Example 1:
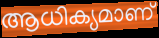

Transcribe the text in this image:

ആധിക്യമാണ്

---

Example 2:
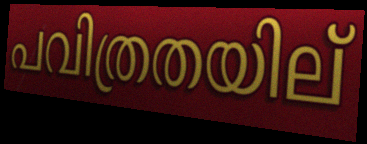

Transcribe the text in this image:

പവിത്രതയില്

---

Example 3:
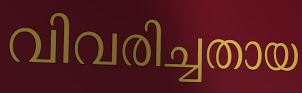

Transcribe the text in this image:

വിവരിച്ചതായ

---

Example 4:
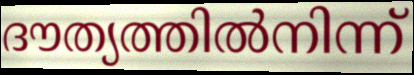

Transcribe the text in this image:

ദൗത്യത്തിൽനിന്ന്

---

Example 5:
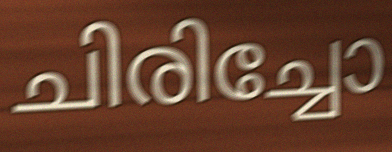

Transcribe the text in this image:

ചിരിച്ചോ